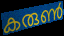
കരുൺ